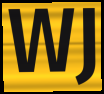
WJ